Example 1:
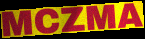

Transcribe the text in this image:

MCZMA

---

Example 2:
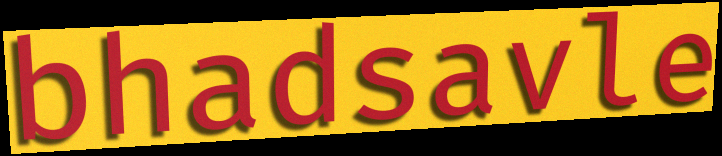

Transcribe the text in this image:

bhadsavle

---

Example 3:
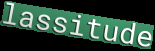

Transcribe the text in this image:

lassitude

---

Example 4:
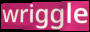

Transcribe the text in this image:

wriggle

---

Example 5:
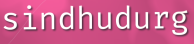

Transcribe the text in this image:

sindhudurg